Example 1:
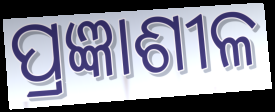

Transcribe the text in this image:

ପ୍ରଜ୍ଞାଶୀଳ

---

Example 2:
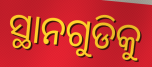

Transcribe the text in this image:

ସ୍ଥାନଗୁଡିକୁ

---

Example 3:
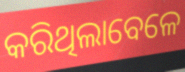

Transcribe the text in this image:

କରିଥିଲାବେଳେ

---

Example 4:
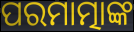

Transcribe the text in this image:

ପରମାତ୍ମାଙ୍କ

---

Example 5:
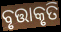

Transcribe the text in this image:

ବୃତ୍ତାକୃତି